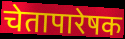
चेतापारेषक